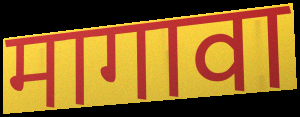
मागावा